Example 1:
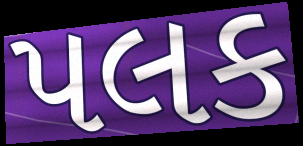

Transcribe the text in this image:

પલક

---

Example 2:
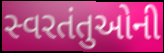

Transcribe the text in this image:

સ્વરતંતુઓની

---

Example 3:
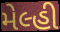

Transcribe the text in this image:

મેલ્હી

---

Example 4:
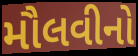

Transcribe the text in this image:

મૌલવીનો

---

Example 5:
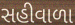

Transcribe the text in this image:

સહીવાળા